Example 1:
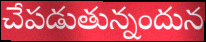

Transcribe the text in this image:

చేపడుతున్నందున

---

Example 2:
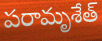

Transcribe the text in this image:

పరామృశేత్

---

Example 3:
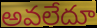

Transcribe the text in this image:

అవలేదూ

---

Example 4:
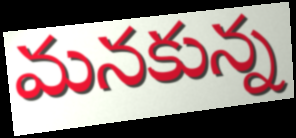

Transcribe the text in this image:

మనకున్న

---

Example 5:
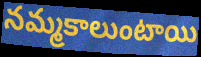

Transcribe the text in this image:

నమ్మకాలుంటాయి